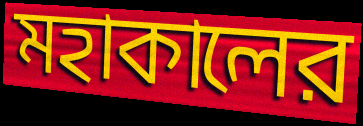
মহাকালের